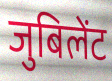
जुबिलेंट